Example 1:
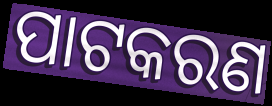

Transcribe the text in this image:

ପାଟକରଣ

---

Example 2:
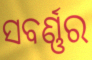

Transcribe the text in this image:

ସବର୍ଣ୍ଣର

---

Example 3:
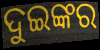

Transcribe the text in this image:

ଦୁଇଙ୍କର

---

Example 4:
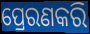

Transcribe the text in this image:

ପ୍ରେରଣକରି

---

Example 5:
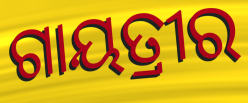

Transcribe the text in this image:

ଗାୟତ୍ରୀର